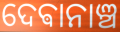
ଦେଵାନାଞ୍ଚ